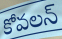
కోవలన్